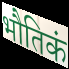
भौतिकं